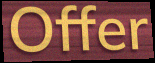
Offer